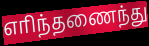
எரிந்தணைந்து